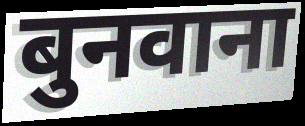
बुनवाना